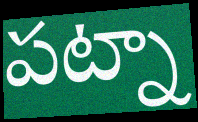
పట్నా